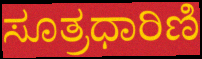
ಸೂತ್ರಧಾರಿಣಿ